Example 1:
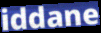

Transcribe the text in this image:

iddane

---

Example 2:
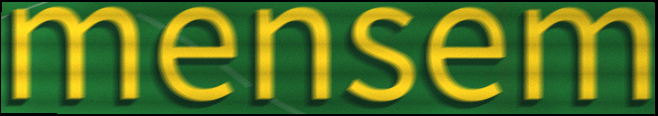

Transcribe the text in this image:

mensem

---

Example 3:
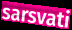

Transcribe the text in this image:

sarsvati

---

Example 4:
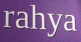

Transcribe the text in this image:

rahya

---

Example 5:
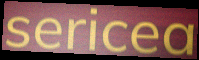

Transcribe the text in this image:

sericea